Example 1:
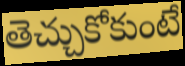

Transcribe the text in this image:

తెచ్చుకోకుంటే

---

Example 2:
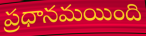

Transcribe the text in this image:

ప్రధానమయింది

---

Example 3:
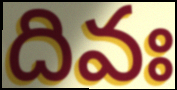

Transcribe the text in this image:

దివః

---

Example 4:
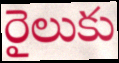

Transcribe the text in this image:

రైలుకు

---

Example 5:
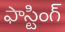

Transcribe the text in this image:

ఫాస్టింగ్